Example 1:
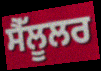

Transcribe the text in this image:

ਸੈੱਲੂਲਰ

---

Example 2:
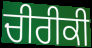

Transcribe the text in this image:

ਚੀਰੀਕੀ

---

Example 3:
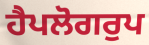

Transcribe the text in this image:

ਹੈਪਲੋਗਰੁਪ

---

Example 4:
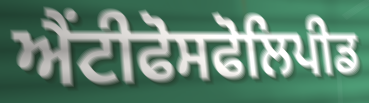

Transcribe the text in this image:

ਐਂਟੀਫੋਸਫੋਲਿਪੀਡ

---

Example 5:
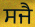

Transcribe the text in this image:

ਸਜੈ